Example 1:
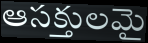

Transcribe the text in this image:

ఆసక్తులమై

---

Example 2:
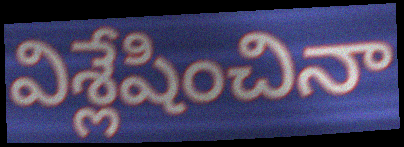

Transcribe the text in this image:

విశ్లేషించినా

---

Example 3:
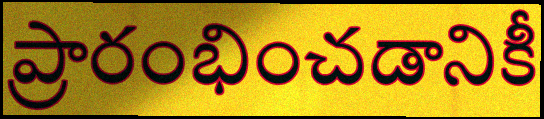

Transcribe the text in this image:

ప్రారంభించడానికీ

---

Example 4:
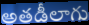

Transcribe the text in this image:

అతడీలాగు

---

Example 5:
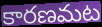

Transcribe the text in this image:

కారణమట